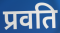
प्रवति